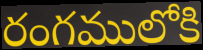
రంగములోకి